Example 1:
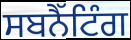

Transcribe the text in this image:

ਸਬਨੈੱਟਿੰਗ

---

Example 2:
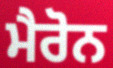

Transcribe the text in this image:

ਮੈਰੋਨ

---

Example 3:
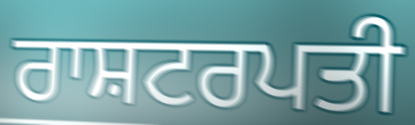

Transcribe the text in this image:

ਰਾਸ਼ਟਰਪਤੀ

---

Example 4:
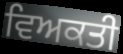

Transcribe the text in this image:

ਵਿਅਕਤੀ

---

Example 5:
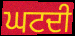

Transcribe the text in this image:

ਘਟਦੀ